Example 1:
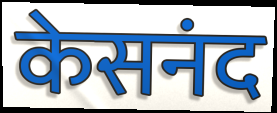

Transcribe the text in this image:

केसनंद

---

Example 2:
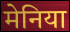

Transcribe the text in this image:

मेनिया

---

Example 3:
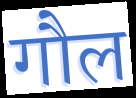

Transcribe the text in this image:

गौल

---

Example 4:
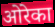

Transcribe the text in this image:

ओरेका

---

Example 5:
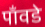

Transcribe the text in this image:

पाँवडे